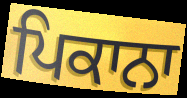
ਪਿਕਾਨਾ